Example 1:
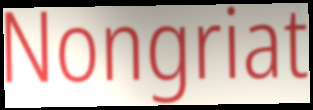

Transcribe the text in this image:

Nongriat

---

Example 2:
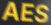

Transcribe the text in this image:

AES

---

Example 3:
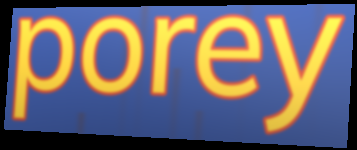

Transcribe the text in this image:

porey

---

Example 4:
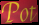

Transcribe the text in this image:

Pot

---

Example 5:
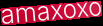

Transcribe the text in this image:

amaxoxo